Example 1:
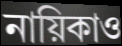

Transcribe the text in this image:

নায়িকাও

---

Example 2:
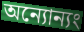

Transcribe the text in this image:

অন্যোন্যং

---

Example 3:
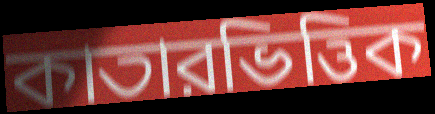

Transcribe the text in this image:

কাতারভিত্তিক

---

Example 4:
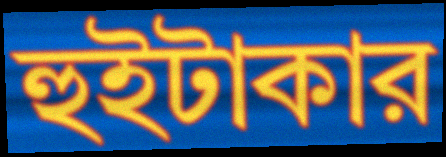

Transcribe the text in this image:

হুইটাকার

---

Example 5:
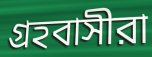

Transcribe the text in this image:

গ্রহবাসীরা